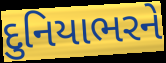
દુનિયાભરને